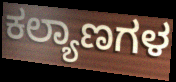
ಕಲ್ಯಾಣಗಳ